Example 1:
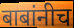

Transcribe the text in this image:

बाबांनीच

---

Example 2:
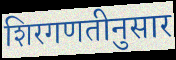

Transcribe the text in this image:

शिरगणतीनुसार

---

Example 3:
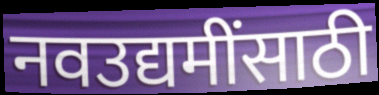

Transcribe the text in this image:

नवउद्यमींसाठी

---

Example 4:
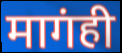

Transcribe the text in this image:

मागंही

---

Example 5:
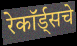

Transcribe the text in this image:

रेकॉर्ड्सचे